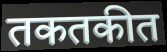
तकतकीत